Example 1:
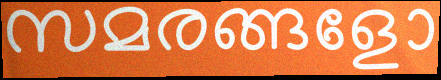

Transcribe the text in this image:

സമരങ്ങളോ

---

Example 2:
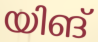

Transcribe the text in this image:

യിങ്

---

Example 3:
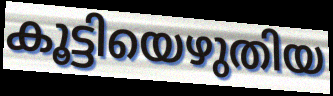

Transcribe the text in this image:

കൂട്ടിയെഴുതിയ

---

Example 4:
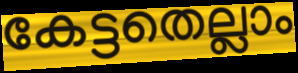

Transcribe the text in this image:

കേട്ടതെല്ലാം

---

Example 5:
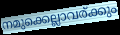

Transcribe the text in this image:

നമുക്കെല്ലാവര്ക്കും